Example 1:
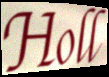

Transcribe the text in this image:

Holl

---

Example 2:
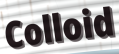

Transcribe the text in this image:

Colloid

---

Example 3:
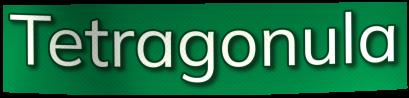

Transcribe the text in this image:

Tetragonula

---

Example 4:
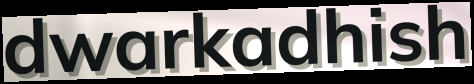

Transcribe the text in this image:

dwarkadhish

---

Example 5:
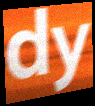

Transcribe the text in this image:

dy